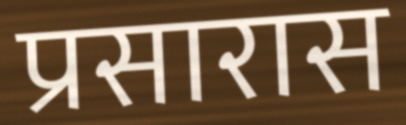
प्रसारास